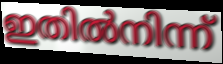
ഇതിൽനിന്ന്